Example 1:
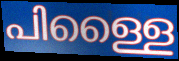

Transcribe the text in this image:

പിള്ളൈ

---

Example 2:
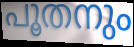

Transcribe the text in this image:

പൂതനും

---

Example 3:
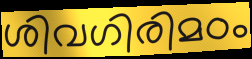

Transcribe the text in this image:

ശിവഗിരിമഠം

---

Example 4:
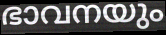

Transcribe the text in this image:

ഭാവനയും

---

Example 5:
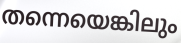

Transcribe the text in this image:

തന്നെയെങ്കിലും